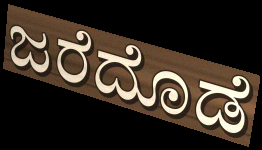
ಜರೆದೊಡೆ